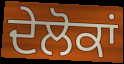
ਦੇਲੋਕਾਂ